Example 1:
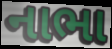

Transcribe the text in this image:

નાભા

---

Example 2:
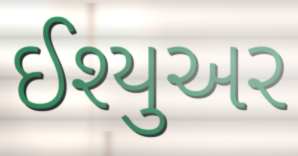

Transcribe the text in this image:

ઈશ્યુઅર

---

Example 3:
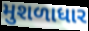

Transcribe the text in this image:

મુશળાધાર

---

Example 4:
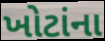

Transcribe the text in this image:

ખોટાંના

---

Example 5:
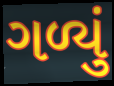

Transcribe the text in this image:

ગળ્યું